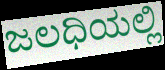
ಜಲಧಿಯಲ್ಲಿ